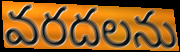
వరదలను